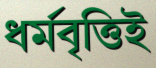
ধর্মবৃত্তিই